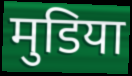
मुडिया